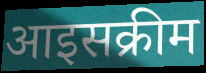
आइसक्रीम